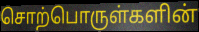
சொற்பொருள்களின்